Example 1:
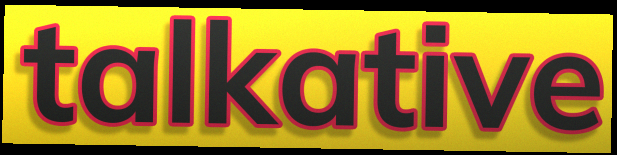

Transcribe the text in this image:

talkative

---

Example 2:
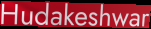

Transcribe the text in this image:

Hudakeshwar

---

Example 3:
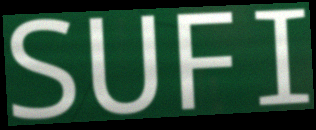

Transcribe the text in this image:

SUFI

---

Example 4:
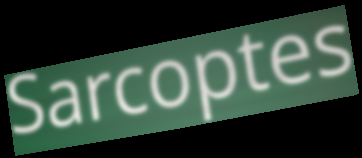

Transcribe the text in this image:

Sarcoptes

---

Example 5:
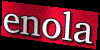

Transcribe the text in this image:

enola